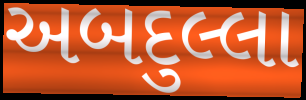
અબદુલ્લા